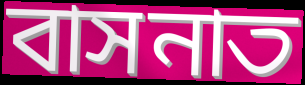
বাসনাত